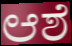
ಆಶೆ